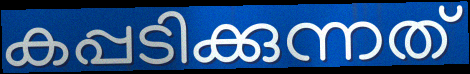
കപ്പടിക്കുന്നത്